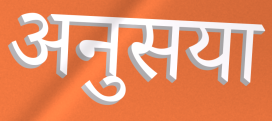
अनुसया